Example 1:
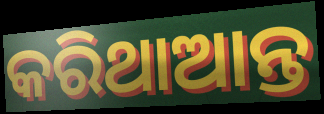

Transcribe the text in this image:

କରିଥାଆନ୍ତ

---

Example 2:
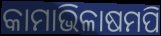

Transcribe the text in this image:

କାମାଭିଳାଷମପି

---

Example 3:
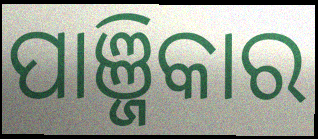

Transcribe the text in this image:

ପାଞ୍ଜିକାର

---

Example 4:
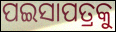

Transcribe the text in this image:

ପଇସାପତ୍ରକୁ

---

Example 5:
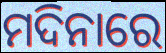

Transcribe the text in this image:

ମଦିନାରେ